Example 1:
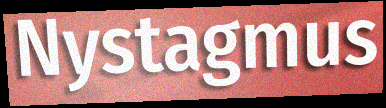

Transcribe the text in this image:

Nystagmus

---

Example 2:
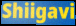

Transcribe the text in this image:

Shiigavi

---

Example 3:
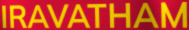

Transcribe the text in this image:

IRAVATHAM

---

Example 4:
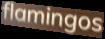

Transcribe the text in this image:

flamingos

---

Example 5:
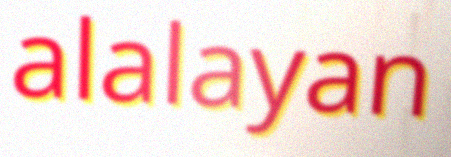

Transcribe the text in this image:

alalayan